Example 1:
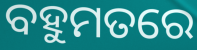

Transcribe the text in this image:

ବହୁମତରେ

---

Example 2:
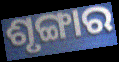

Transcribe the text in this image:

ଶୃଙ୍ଗାର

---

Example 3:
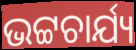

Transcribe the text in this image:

ଭଟ୍ଟଚାର୍ଯ୍ୟ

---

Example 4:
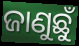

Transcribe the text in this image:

ଜାଣୁଛୁଁ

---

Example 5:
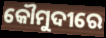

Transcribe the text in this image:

କୌମୁଦୀରେ